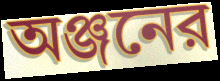
অঞ্জনের